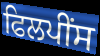
ਫਿਲਪੀਂਸ